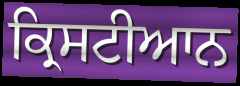
ਕ੍ਰਿਸਟੀਆਨ